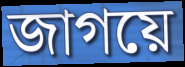
জাগয়ে